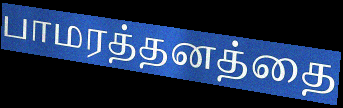
பாமரத்தனத்தை